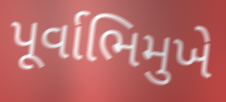
પૂર્વાભિમુખે